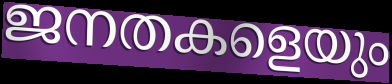
ജനതകളെയും